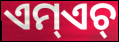
ଏମ୍ଏଚ୍